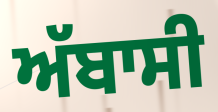
ਅੱਬਾਸੀ